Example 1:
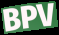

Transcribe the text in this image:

BPV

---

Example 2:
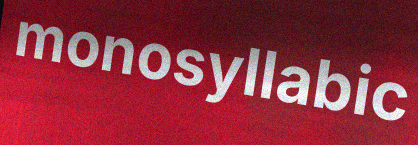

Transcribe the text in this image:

monosyllabic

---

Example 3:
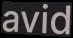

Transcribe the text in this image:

avid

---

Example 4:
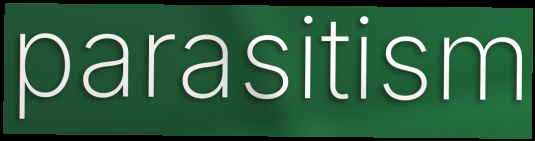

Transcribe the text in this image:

parasitism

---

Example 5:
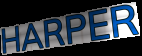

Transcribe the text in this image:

HARPER